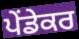
ਪੇਂਡੇਕਰ